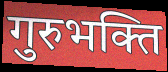
गुरुभक्ति